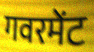
गवरमेंट